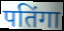
पतिंगा